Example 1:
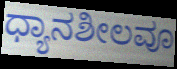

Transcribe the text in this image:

ಧ್ಯಾನಶೀಲವೂ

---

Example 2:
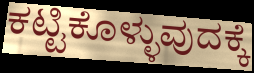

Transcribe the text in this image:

ಕಟ್ಟಿಕೊಳ್ಳುವುದಕ್ಕೆ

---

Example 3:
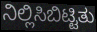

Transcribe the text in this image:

ನಿಲ್ಲಿಸಿಬಿಟ್ಟಿತು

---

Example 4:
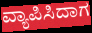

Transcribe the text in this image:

ವ್ಯಾಪಿಸಿದಾಗ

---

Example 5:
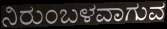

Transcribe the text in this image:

ನಿರುಂಬಳವಾಗುವ